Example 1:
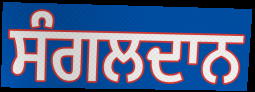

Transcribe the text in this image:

ਸੰਗਲਦਾਨ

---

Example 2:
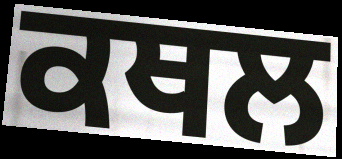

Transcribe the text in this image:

ਕਥਲ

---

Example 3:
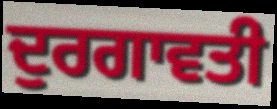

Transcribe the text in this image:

ਦੁਰਗਾਵਤੀ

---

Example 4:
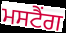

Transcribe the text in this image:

ਮਸਟੈਂਗ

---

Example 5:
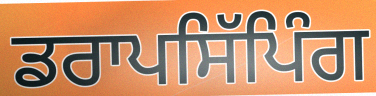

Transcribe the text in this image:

ਡਰਾਪਸਿੱਪਿੰਗ